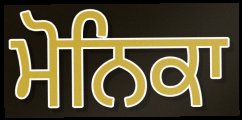
ਮੋਨਿਕਾ